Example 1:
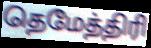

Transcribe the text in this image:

தெமேத்திரி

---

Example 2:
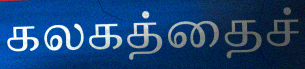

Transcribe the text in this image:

கலகத்தைச்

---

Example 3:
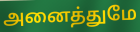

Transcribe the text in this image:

அனைத்துமே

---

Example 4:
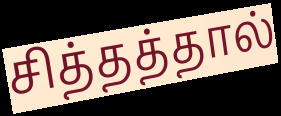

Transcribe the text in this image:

சித்தத்தால்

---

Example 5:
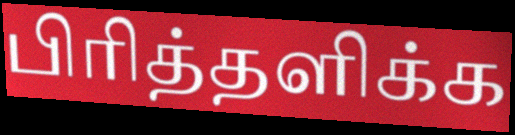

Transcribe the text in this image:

பிரித்தளிக்க